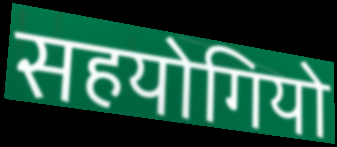
सहयोगियो